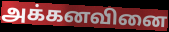
அக்கனவினை